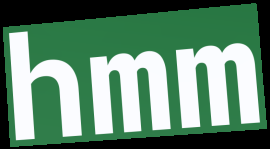
hmm